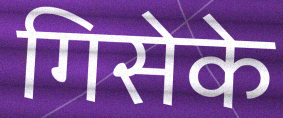
गिसेके